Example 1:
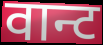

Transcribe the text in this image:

वान्ट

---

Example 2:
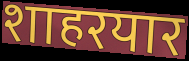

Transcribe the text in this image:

शाहरयार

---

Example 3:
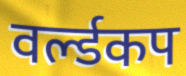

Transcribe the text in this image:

वर्ल्डकप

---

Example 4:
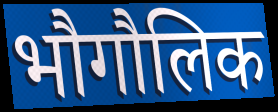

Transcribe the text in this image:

भौगौलिक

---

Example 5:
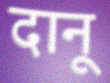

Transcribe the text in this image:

दानू